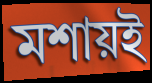
মশায়ই